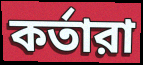
কর্তারা